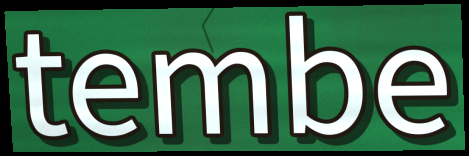
tembe